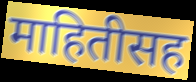
माहितीसह